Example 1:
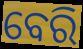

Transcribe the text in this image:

ବେରି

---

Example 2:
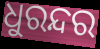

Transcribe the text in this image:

ଧୁରନ୍ଦର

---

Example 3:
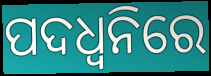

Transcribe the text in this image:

ପଦଧ୍ୱନିରେ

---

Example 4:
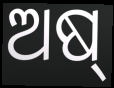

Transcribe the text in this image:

ଅଷ୍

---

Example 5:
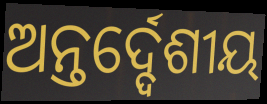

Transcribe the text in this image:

ଅନ୍ତର୍ଦ୍ଦେଶୀୟ